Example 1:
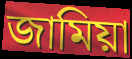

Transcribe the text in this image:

জামিয়া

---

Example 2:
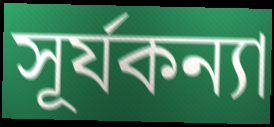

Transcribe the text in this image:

সূর্যকন্যা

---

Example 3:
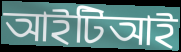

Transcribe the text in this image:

আইটিআই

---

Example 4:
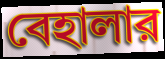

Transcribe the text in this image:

বেহালার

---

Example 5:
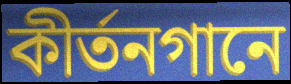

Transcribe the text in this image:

কীর্তনগানে